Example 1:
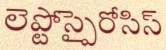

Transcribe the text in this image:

లెప్టోస్పైరోసిస్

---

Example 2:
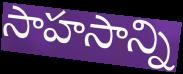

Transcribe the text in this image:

సాహసాన్ని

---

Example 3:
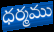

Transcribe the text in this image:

ధర్మము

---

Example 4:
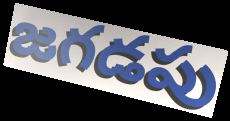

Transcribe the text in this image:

జగడపు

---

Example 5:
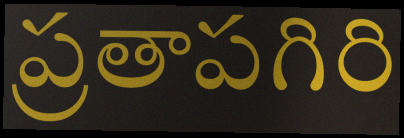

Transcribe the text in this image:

ప్రతాపగిరి